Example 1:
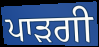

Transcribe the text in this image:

ਪਾੜਗੀ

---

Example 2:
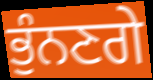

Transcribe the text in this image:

ਭੁੰਨਣਗੇ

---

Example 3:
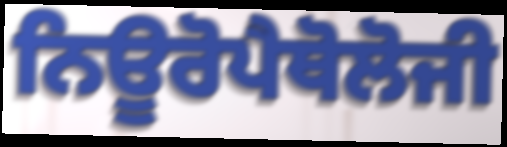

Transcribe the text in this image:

ਨਿਊਰੋਪੈਥੋਲੋਜੀ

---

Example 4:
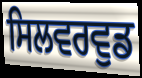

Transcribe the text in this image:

ਸਿਲਵਰਵੁਡ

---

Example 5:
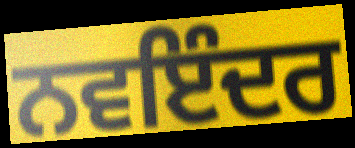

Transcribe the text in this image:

ਨਵਇੰਦਰ